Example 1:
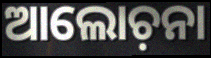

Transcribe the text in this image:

ଆଲୋଚ଼ନା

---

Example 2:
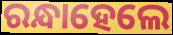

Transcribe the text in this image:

ରନ୍ଧାହେଲେ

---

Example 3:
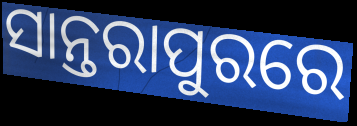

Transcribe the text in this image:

ସାନ୍ତରାପୁରରେ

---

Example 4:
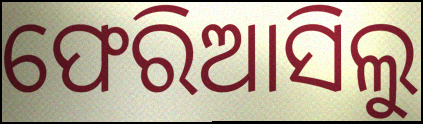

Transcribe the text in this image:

ଫେରିଆସିଲୁ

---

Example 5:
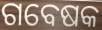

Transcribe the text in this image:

ଗବେଷକ